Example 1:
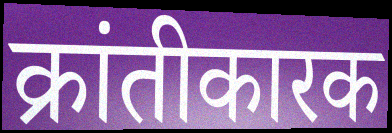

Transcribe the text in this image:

क्रांतीकारक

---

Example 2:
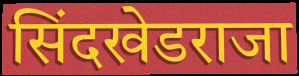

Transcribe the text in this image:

सिंदखेडराजा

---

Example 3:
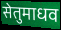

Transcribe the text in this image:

सेतुमाधव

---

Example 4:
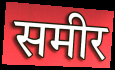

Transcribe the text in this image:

समीर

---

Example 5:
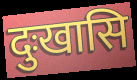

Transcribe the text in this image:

दुःखासि